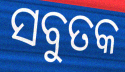
ସବୁତକ